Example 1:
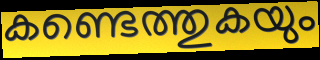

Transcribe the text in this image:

കണ്ടെത്തുകയും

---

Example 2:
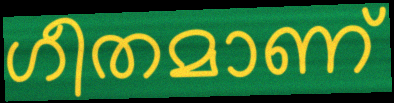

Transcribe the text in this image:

ഗീതമാണ്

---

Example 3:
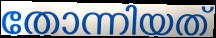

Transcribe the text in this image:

തോന്നിയത്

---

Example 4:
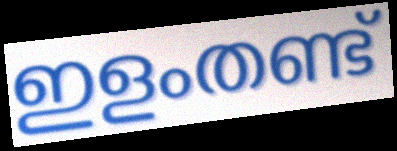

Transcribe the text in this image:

ഇളംതണ്ട്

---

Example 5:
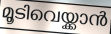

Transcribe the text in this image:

മൂടിവെയ്ക്കാൻ